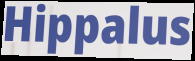
Hippalus